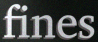
fines